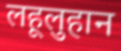
लहूलुहान